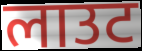
लाउट